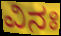
ವಿನಃ